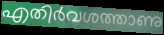
എതിർവശത്താണു